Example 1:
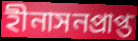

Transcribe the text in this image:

হীনাসনপ্রাপ্ত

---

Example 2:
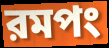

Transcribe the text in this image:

রমপং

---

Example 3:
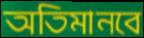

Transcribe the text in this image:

অতিমানবে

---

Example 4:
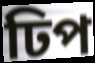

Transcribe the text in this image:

ঢিপ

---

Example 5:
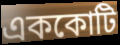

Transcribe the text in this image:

এককোটি